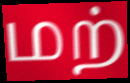
மற்